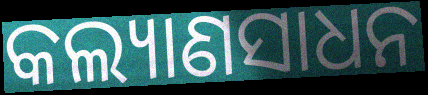
କଲ୍ୟାଣସାଧନ